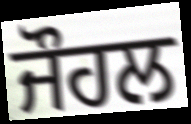
ਜੌਹਲ